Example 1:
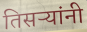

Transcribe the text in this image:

तिसऱ्यांनी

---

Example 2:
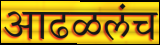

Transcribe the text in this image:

आढळलंच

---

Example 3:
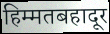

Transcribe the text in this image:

हिम्मतबहादूर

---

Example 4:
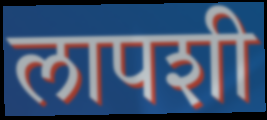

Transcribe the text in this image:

लापशी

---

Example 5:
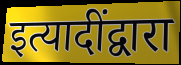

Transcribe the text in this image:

इत्यादींद्वारा